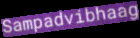
Sampadvibhaag